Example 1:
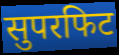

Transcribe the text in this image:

सुपरफिट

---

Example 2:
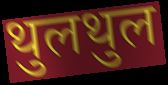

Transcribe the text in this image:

थुलथुल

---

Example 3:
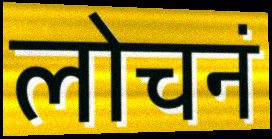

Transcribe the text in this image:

लोचनं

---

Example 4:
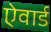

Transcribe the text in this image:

ऐवार्ड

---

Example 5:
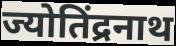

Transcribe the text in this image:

ज्योतिंद्रनाथ